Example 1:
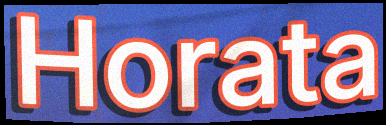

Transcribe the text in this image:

Horata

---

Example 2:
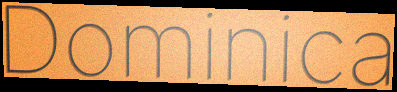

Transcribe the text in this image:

Dominica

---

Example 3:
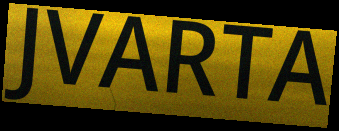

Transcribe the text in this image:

JVARTA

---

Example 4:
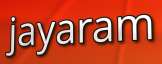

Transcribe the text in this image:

jayaram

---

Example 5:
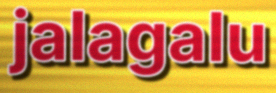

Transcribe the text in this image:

jalagalu